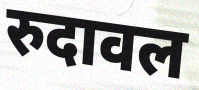
रुदावल